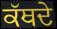
ਕੱਥਦੇ